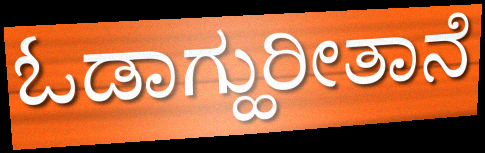
ಓಡಾಗ್ಹುರೀತಾನೆ